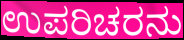
ಉಪರಿಚರನು